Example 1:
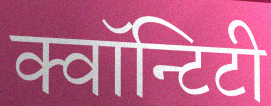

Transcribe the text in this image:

क्वॉन्टिटी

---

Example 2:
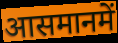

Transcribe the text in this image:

आसमानमें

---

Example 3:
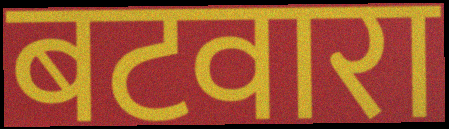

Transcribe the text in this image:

बटवारा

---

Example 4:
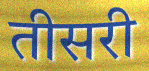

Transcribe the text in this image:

तीसरी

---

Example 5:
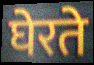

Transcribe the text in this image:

घेरते